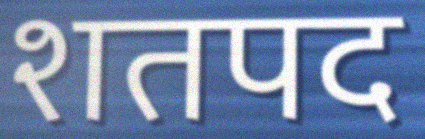
शतपद